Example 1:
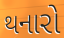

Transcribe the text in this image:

થનારો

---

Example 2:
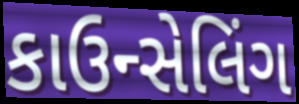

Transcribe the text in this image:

કાઉન્સેલિંગ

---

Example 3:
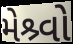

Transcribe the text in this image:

મેશ્ર્વો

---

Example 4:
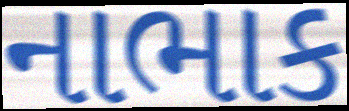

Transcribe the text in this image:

નાભાક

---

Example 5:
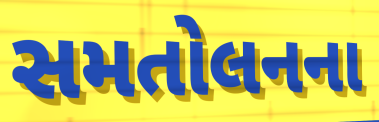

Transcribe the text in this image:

સમતોલનના